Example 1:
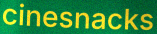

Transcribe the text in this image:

cinesnacks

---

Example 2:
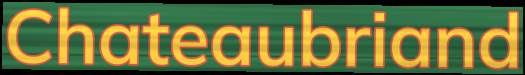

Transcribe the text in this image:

Chateaubriand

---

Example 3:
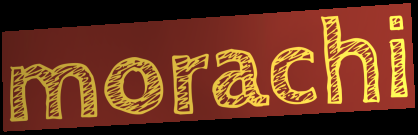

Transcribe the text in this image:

morachi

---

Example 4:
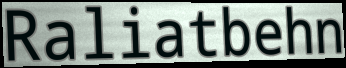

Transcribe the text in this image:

Raliatbehn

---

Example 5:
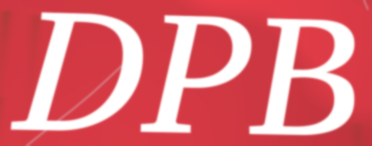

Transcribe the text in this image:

DPB